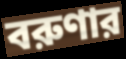
বরুণার